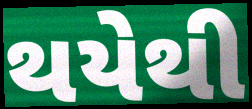
થયેથી